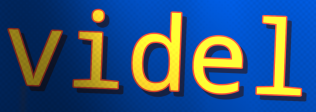
videl